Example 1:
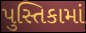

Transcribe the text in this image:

પુસ્તિકામાં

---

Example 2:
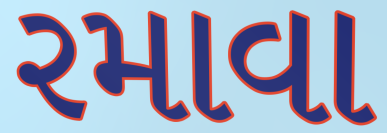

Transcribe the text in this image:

રમાવા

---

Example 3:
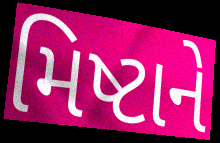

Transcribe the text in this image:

મિષ્ટાને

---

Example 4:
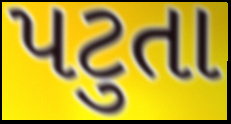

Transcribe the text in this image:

પટુતા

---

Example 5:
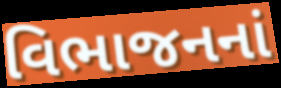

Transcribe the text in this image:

વિભાજનનાં